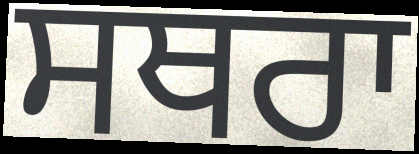
ਸਥਰਾ